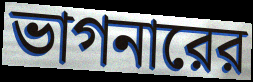
ভাগনারের